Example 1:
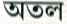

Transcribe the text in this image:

অতল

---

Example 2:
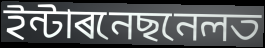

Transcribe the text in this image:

ইন্টাৰনেছনেলত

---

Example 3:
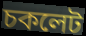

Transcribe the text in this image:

চকলেট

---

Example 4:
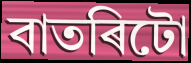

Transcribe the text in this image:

বাতৰিটো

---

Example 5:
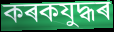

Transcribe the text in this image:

কৰকযুদ্ধৰ